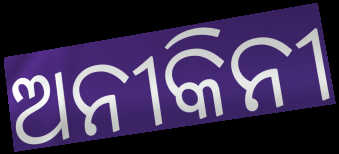
ଅନୀକିନୀ